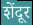
शेंदूर